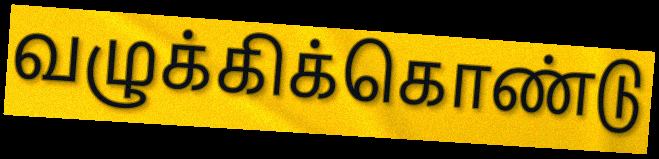
வழுக்கிக்கொண்டு